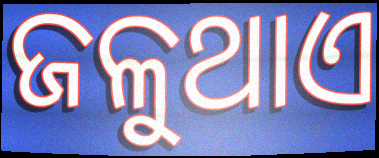
ଜଳୁଥାଏ